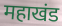
महाखंड